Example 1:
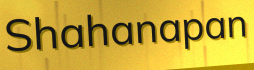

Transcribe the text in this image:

Shahanapan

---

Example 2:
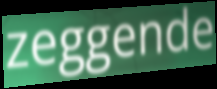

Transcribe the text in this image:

zeggende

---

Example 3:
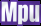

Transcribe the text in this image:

Mpu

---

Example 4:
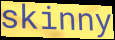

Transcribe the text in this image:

skinny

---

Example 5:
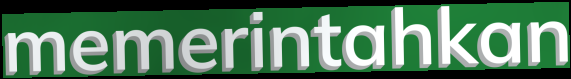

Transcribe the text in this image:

memerintahkan